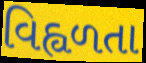
વિહ્વળતા